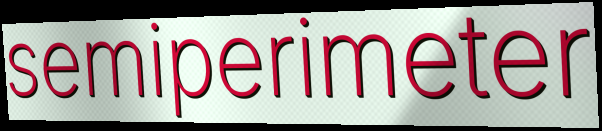
semiperimeter